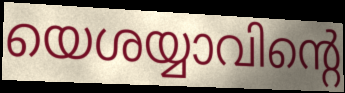
യെശയ്യാവിന്റെ